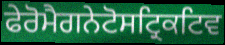
ਫੇਰੋਮੈਗਨੇਟੋਸਟ੍ਰਿਕਟਿਵ